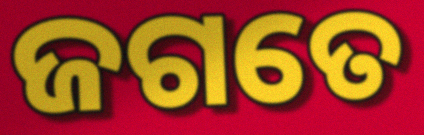
ଜଗତେ